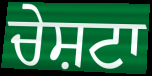
ਚੇਸ਼ਟਾ